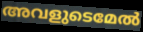
അവളുടെമേൽ